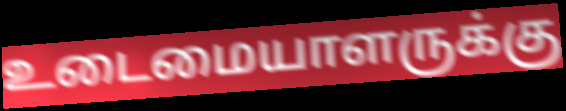
உடைமையாளருக்கு